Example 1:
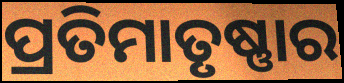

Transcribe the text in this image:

ପ୍ରତିମାତୃଷ୍ଣାର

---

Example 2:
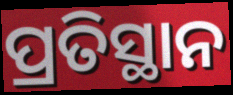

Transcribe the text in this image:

ପ୍ରତିସ୍ଥାନ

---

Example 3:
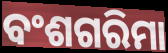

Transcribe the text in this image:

ବଂଶଗରିମା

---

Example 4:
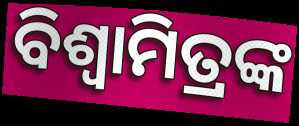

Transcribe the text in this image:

ବିଶ୍ବାମିତ୍ରଙ୍କ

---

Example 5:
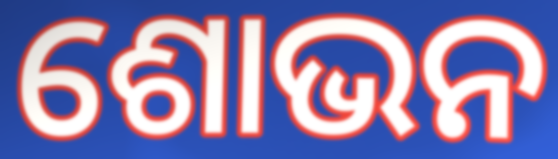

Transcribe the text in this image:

ଶୋଭନ